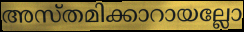
അസ്തമിക്കാറായല്ലോ